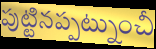
పుట్టినప్పట్నుంచీ